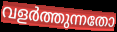
വളർത്തുന്നതോ